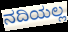
ನದಿಯಲ್ಲ